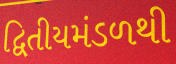
દ્વિતીયમંડળથી